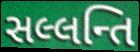
સલ્લન્તિ